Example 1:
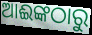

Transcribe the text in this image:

ଆଈଙ୍କଠାରୁ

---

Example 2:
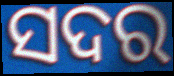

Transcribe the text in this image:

ସଦର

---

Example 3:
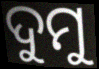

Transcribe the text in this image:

ଦୁମୁ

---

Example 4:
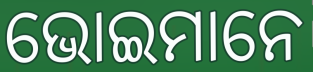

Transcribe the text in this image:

ଭୋଇମାନେ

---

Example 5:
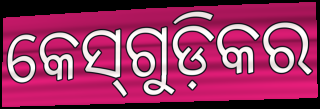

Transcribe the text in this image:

କେସ୍‌ଗୁଡ଼ିକର